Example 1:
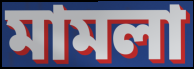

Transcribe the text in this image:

মামলা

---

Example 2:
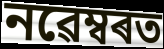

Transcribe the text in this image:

নৱেম্বৰত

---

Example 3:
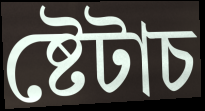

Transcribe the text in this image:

ষ্টেটাচ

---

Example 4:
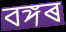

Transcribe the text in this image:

বঙ্গৰ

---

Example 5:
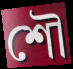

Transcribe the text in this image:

শৌ